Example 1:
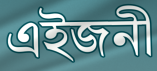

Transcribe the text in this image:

এইজনী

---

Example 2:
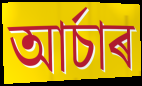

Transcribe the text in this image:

আৰ্চাৰ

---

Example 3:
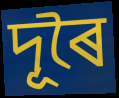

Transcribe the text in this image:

দূৰৈ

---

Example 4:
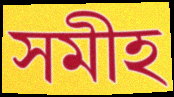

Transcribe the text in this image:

সমীহ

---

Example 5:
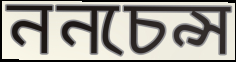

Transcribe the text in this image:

ননচেন্স